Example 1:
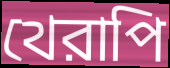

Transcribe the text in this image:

থেরাপি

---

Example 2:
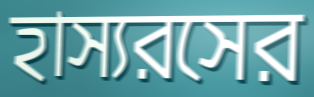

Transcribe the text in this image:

হাস্যরসের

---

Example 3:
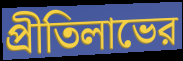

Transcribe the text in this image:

প্রীতিলাভের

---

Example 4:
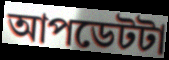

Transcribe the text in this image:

আপডেটটা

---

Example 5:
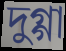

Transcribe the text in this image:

দুগ্গা